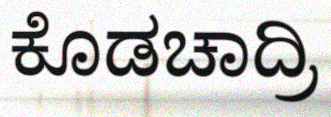
ಕೊಡಚಾದ್ರಿ